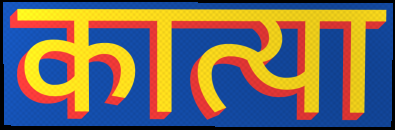
कात्या